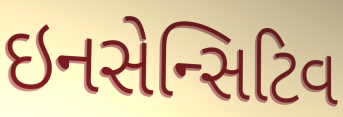
ઇનસેન્સિટિવ